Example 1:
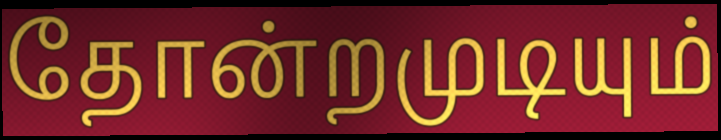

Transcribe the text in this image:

தோன்றமுடியும்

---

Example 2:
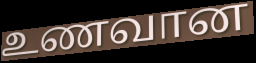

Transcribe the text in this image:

உணவான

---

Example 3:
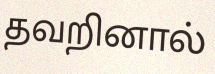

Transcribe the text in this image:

தவறினால்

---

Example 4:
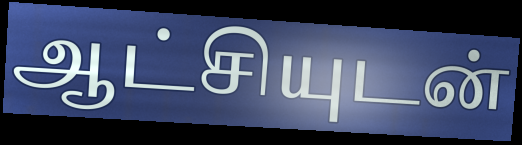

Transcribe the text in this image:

ஆட்சியுடன்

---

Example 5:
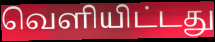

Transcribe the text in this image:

வெளியிட்டது